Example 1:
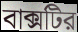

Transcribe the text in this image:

বাক্সটির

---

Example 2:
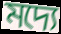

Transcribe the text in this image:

মদ্যে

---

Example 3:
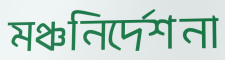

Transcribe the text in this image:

মঞ্চনির্দেশনা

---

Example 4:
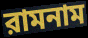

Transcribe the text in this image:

রামনাম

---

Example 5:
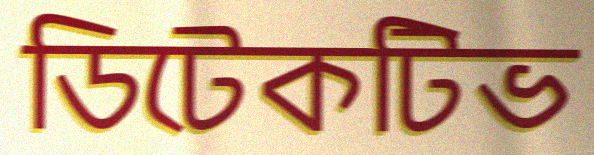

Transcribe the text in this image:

ডিটেকটিভ